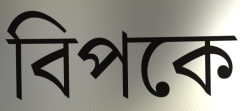
বিপকে